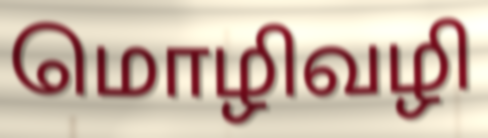
மொழிவழி